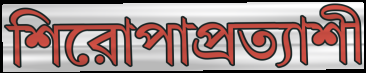
শিরোপাপ্রত্যাশী